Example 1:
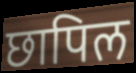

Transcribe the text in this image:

छापिल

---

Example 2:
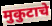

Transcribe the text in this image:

मुकुटाचे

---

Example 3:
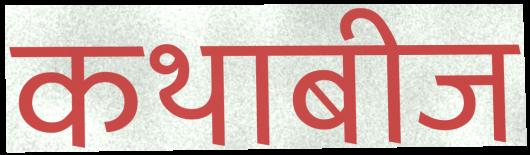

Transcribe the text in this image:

कथाबीज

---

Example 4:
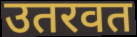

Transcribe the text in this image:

उतरवत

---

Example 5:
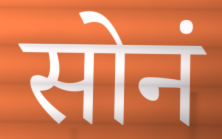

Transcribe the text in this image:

सोनं